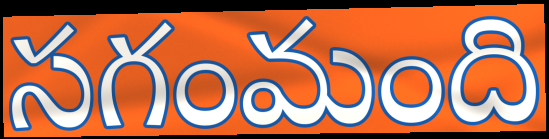
సగంమంది